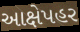
આક્ષેપહર